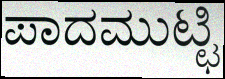
ಪಾದಮುಟ್ಟಿ